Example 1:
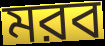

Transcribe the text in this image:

মরব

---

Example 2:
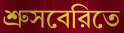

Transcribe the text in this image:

শ্রুসবেরিতে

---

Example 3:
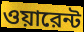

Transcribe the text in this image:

ওয়ারেন্ট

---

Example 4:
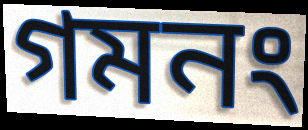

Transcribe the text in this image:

গমনং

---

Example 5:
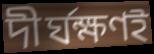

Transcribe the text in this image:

দীর্ঘক্ষণই